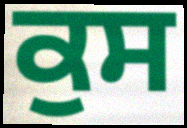
ਕੁਸ